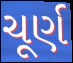
ચૂર્ણ